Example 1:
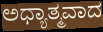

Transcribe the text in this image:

ಅಧ್ಯಾತ್ಮವಾದ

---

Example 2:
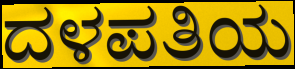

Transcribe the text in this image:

ದಳಪತಿಯ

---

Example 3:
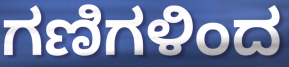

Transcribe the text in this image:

ಗಣಿಗಳಿಂದ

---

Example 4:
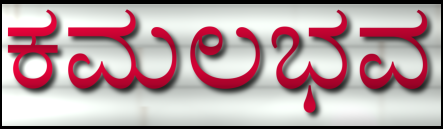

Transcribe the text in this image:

ಕಮಲಭವ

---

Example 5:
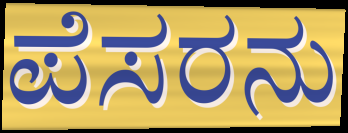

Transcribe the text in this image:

ಪೆಸರನು